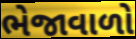
ભેજાવાળો